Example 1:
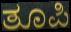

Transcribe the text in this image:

ತೂಪಿ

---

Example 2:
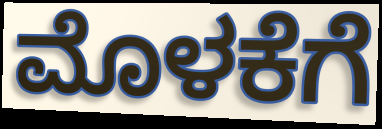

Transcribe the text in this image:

ಮೊಳಕೆಗೆ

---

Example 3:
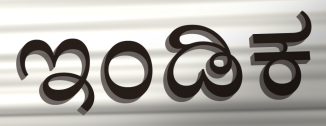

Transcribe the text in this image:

ಇಂಡಿಕ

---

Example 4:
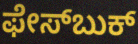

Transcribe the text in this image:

ಫೇಸ್‌ಬುಕ್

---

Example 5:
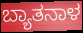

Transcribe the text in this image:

ಬ್ಯಾತನಾಳ